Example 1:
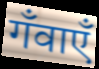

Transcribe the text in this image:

गँवाएँ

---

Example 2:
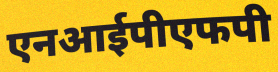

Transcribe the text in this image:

एनआईपीएफपी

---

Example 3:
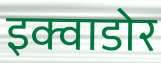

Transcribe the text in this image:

इक्वाडोर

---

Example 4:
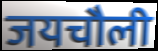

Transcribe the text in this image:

जयचौली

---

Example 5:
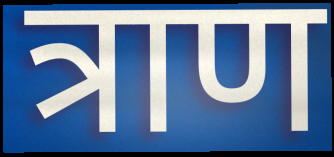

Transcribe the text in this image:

त्राण